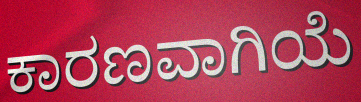
ಕಾರಣವಾಗಿಯೆ